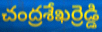
చంద్రశేఖర్రెడ్డి